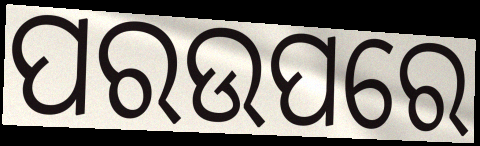
ପରଉପରେ